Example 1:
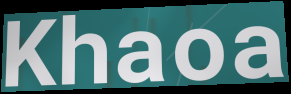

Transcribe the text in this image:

Khaoa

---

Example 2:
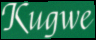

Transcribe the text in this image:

Kugwe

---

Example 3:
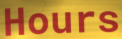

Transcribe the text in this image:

Hours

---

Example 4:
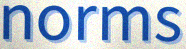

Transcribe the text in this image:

norms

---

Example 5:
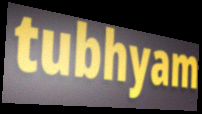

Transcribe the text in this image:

tubhyam